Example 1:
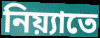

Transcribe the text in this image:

নিয়্যাতে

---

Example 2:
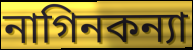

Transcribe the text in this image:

নাগিনকন্যা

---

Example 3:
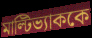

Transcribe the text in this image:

মাল্টিভ্যাককে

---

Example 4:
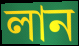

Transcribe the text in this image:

লান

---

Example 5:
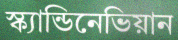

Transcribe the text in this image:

স্ক্যান্ডিনেভিয়ান